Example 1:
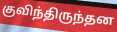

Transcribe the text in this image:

குவிந்திருந்தன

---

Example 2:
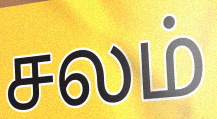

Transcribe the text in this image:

சலம்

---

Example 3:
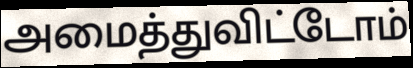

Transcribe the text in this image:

அமைத்துவிட்டோம்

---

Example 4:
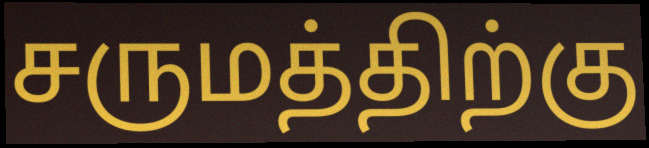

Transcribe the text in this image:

சருமத்திற்கு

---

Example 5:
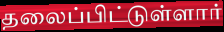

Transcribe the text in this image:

தலைப்பிட்டுள்ளார்